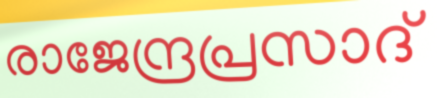
രാജേന്ദ്രപ്രസാദ്